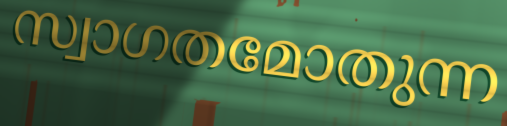
സ്വാഗതമോതുന്ന